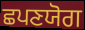
ਛਪਣਯੋਗ